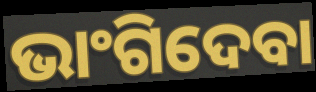
ଭାଂଗିଦେବା